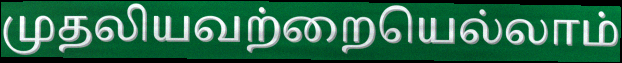
முதலியவற்றையெல்லாம்